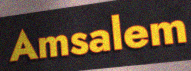
Amsalem